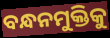
ବନ୍ଧନମୁକ୍ତିକୁ